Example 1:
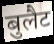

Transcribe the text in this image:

बुलैट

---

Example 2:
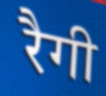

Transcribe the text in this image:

रैगी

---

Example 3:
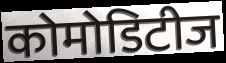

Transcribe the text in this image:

कोमोडिटीज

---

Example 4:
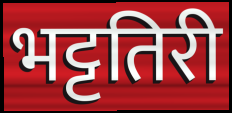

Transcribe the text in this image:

भट्टतिरी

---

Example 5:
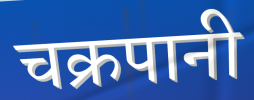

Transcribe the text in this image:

चक्रपानी